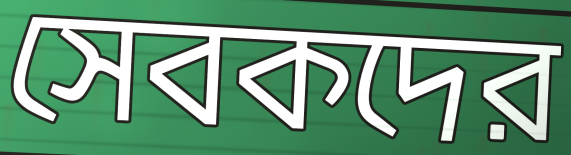
সেবকদের